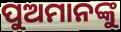
ପୁଅମାନଙ୍କୁ